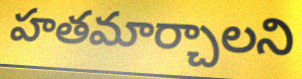
హతమార్చాలని